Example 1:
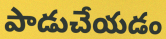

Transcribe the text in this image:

పాడుచేయడం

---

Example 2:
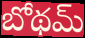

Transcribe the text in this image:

బోథమ్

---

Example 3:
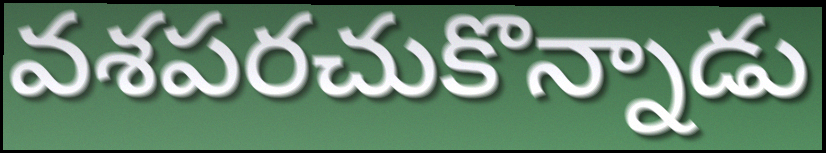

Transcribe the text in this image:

వశపరచుకొన్నాడు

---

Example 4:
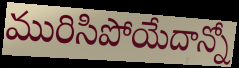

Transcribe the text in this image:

మురిసిపోయేదాన్నో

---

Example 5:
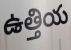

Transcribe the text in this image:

ఉత్తియ